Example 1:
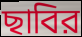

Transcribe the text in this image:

ছাবির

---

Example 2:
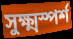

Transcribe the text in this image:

সুক্ষ্মস্পর্শ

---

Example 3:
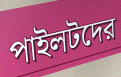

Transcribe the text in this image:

পাইলটদের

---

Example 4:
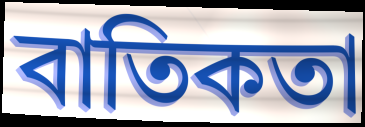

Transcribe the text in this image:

বাতিকতা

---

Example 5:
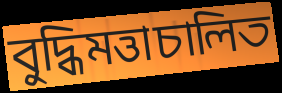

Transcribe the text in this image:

বুদ্ধিমত্তাচালিত